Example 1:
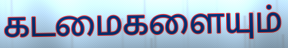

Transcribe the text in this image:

கடமைகளையும்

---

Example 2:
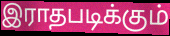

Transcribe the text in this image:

இராதபடிக்கும்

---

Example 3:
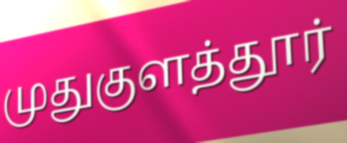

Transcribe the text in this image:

முதுகுளத்தூர்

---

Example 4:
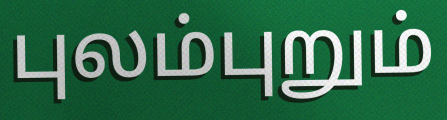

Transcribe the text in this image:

புலம்புறும்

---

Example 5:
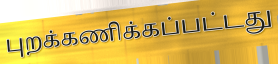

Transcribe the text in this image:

புறக்கணிக்கப்பட்டது